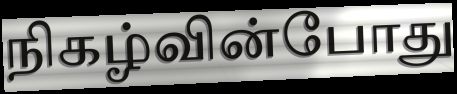
நிகழ்வின்போது